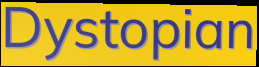
Dystopian